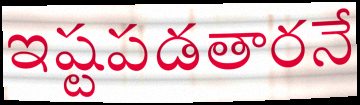
ఇష్టపడతారనే